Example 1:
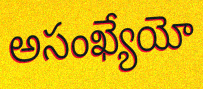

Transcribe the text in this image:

అసంఖ్యేయో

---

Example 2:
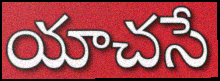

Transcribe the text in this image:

యాచసే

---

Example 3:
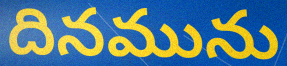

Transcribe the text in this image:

దినమును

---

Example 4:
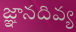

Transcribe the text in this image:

జ్ఞానదివ్య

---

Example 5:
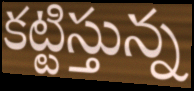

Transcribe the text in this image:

కట్టిస్తున్న